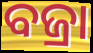
ବଜ୍ରା